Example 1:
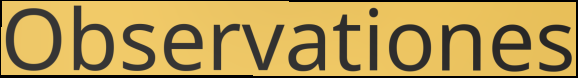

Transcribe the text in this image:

Observationes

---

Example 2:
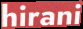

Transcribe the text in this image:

hirani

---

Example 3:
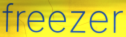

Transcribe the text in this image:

freezer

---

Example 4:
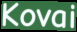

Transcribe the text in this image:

Kovai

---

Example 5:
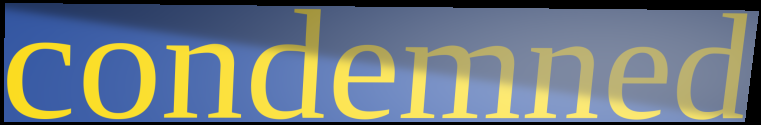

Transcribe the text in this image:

condemned